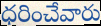
ధరించేవారు